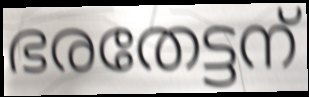
ഭരതേട്ടന്